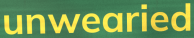
unwearied